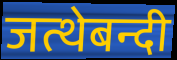
जत्थेबन्दी